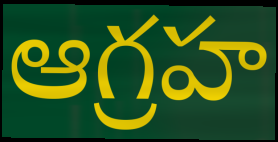
ఆగ్రహ